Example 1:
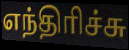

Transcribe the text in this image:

எந்திரிச்சு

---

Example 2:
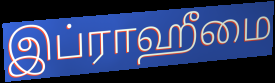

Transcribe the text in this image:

இப்ராஹீமை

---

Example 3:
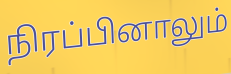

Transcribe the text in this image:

நிரப்பினாலும்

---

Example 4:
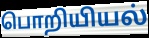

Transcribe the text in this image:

பொறியியல்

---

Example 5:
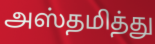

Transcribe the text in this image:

அஸ்தமித்து